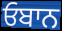
ਓਬਾਨ